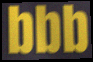
bbb